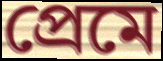
প্ৰেমে